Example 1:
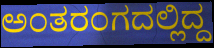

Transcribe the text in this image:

ಅಂತರಂಗದಲ್ಲಿದ್ದ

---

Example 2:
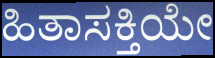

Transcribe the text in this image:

ಹಿತಾಸಕ್ತಿಯೇ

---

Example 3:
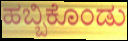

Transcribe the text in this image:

ಹಬ್ಬಿಕೊಂಡು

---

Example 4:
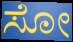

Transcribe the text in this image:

ಸೋ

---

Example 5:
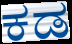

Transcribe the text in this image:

ಕಡ